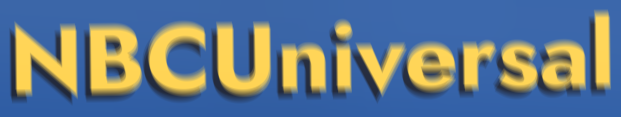
NBCUniversal